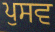
ਪੁਸਵ